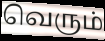
வெரும்